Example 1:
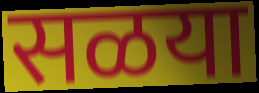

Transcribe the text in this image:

सळया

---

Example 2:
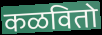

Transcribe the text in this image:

कळवितो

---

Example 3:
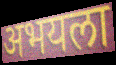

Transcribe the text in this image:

अभयला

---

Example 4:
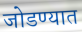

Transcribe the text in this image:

जोडण्यात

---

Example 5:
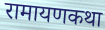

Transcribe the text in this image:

रामायणकथा